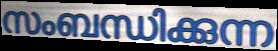
സംബന്ധിക്കുന്ന